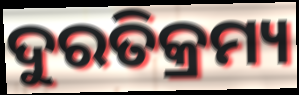
ଦୁରତିକ୍ରମ୍ୟ